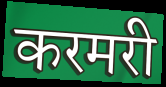
करमरी